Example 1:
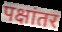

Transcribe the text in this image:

पक्षांतर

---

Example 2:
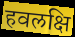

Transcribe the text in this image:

हवलक्षि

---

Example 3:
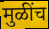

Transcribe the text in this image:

मुळींच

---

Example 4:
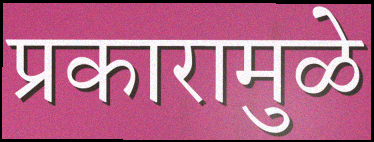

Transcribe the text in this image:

प्रकारामुळे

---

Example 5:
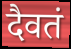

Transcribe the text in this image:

दैवतं